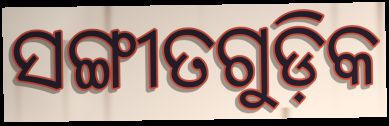
ସଙ୍ଗୀତଗୁଡ଼ିକ